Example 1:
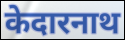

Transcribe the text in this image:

केदारनाथ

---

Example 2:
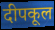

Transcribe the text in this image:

दीपकूल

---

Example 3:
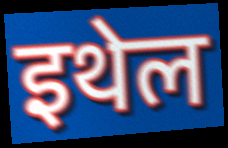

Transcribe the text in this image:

इथेल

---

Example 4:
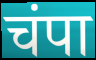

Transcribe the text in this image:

चंपा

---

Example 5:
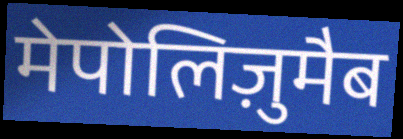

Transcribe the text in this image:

मेपोलिज़ुमैब